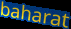
baharat